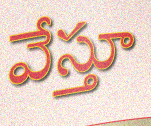
వేస్తూ